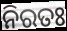
ନିରତଃ